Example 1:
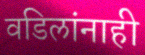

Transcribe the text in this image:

वडिलांनाही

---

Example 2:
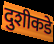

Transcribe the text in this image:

दुशीकडे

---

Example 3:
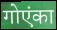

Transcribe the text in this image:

गोएंका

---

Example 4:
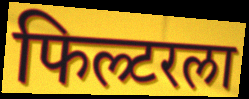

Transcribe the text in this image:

फिल्टरला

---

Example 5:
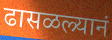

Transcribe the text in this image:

ढासळल्यानं